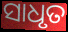
ସାଧୃତ